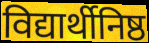
विद्यार्थीनिष्ठ